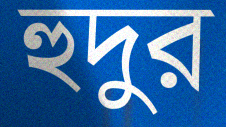
হুদুর